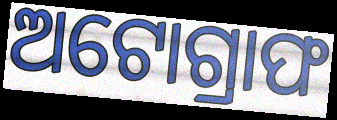
ଅଟୋଗ୍ରାଫ